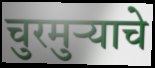
चुरमुऱ्याचे